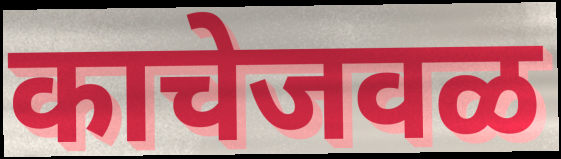
काचेजवळ